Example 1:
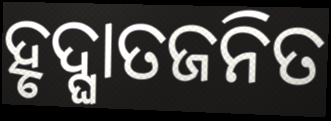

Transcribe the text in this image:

ହୃଦ୍ଘାତଜନିତ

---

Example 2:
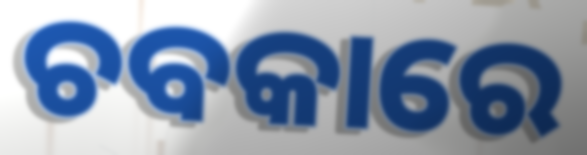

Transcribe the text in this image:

ଚବକାରେ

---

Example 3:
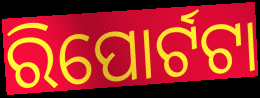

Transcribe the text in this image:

ରିପୋର୍ଟଟା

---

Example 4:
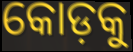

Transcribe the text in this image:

କୋଡ଼କୁ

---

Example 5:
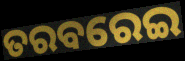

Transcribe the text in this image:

ତରବରେଇ